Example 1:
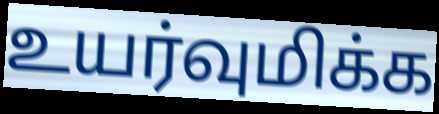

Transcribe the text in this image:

உயர்வுமிக்க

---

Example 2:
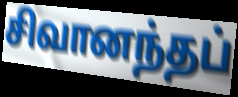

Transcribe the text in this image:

சிவானந்தப்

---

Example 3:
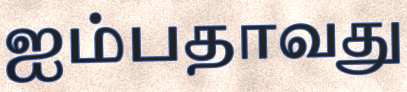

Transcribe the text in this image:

ஐம்பதாவது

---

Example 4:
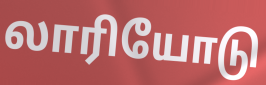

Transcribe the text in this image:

லாரியோடு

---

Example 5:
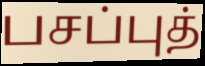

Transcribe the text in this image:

பசப்புத்